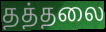
தத்தலை